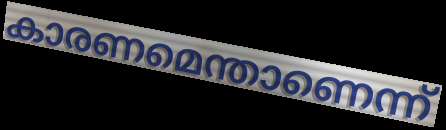
കാരണമെന്താണെന്ന്